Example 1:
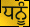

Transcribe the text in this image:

ਧਨੂੰ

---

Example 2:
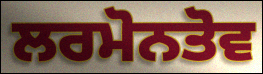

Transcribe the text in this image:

ਲਰਮੋਨਤੋਵ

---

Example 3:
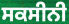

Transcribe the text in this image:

ਸਕਸੀਨੀ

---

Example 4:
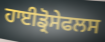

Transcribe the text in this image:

ਹਾਈਡ੍ਰੋਸੇਫਲਸ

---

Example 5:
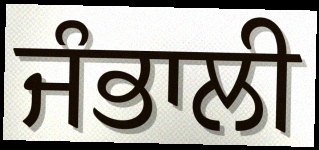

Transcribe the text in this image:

ਜੰਭਾਲੀ